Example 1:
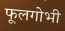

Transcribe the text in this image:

फूलगोभी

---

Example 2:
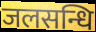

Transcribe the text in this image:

जलसन्धि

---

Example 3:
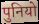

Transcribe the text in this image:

पुनियो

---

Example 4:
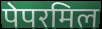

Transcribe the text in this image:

पेपरमिल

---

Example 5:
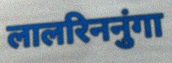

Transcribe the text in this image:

लालरिननुंगा